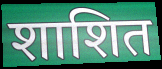
शाशित